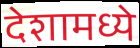
देशामध्ये